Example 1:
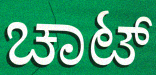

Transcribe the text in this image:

ಚಾಟ್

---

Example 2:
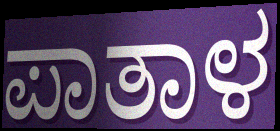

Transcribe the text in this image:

ಪಾತಾಳ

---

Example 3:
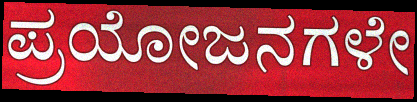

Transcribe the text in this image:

ಪ್ರಯೋಜನಗಳೇ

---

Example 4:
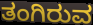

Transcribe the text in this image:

ತಂಗಿರುವ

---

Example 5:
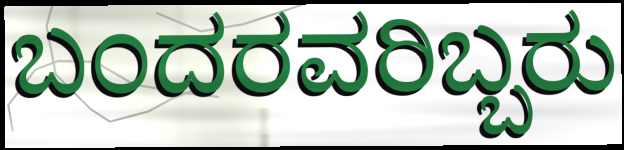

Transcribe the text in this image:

ಬಂದರವರಿಬ್ಬರು